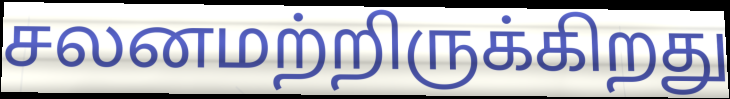
சலனமற்றிருக்கிறது